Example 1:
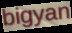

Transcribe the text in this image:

bigyan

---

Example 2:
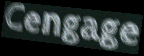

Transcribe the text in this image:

Cengage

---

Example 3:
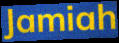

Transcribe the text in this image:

Jamiah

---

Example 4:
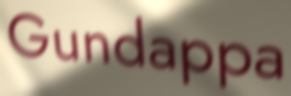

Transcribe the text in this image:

Gundappa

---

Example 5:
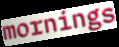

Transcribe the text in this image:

mornings